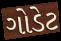
ગોડેટ